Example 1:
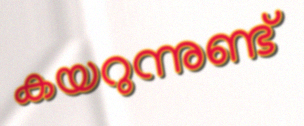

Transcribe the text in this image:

കയറുന്നുണ്ട്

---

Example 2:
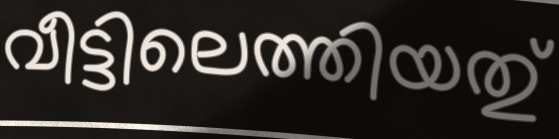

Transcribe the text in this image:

വീട്ടിലെത്തിയതു്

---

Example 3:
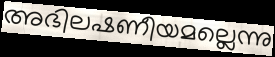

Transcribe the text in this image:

അഭിലഷണീയമല്ലെന്നു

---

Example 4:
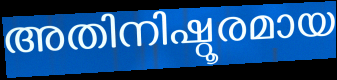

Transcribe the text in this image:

അതിനിഷ്ഠൂരമായ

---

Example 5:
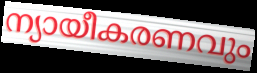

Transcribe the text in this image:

ന്യായീകരണവും